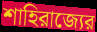
শাহিরাজ্যের